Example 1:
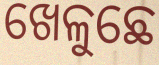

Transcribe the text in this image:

ଖେଳୁଛେ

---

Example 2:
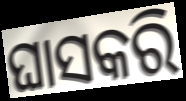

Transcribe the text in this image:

ଘାସକରି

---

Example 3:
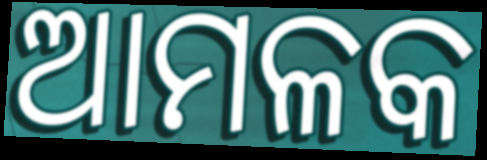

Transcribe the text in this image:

ଆମଳକ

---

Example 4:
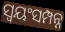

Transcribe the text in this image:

ସ୍ବୟଂସମ୍ପନ୍ନ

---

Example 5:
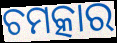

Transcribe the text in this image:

ଚମତ୍କାର